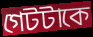
গেটটাকে